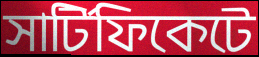
সার্টিফিকেটে